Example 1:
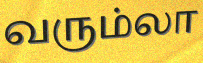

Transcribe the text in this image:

வரும்லா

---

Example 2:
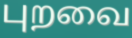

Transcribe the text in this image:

புறவை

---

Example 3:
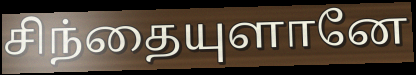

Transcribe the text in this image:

சிந்தையுளானே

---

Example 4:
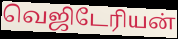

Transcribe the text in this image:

வெஜிடேரியன்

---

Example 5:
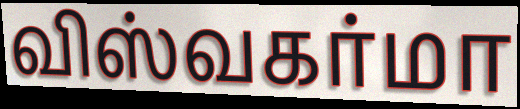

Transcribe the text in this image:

விஸ்வகர்மா